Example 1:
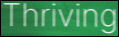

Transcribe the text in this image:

Thriving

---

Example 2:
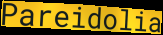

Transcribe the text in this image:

Pareidolia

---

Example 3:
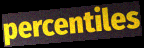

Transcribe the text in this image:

percentiles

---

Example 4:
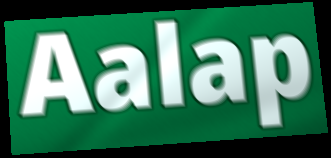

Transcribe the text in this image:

Aalap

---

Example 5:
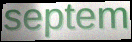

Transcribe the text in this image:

septem